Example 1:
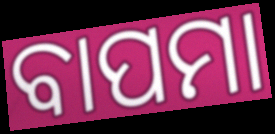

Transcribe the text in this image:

ବାପମା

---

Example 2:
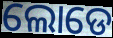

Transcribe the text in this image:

ଲୋଡେ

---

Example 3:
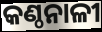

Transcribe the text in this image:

କଣ୍ଠନାଳୀ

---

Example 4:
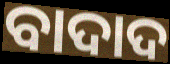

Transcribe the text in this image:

ବାଦାଦ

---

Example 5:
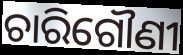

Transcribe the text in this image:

ଚାରିଗୌଣୀ